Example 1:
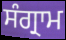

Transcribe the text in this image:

ਸੰਗ੍ਰਾਮ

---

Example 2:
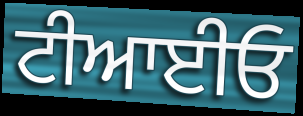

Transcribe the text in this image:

ਟੀਆਈਓ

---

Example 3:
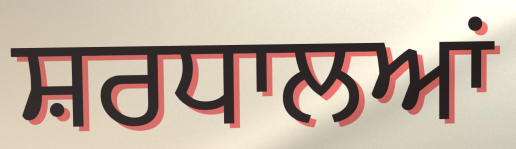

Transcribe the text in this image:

ਸ਼ਰਧਾਲਆਂ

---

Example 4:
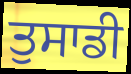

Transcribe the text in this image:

ਤੁਸਾਡੀ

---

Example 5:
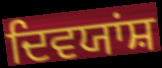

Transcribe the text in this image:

ਦਿਵਯਾਂਸ਼